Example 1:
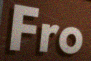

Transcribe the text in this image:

Fro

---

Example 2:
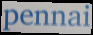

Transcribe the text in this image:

pennai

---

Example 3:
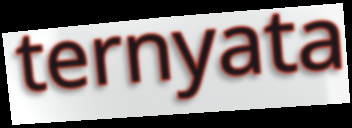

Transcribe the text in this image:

ternyata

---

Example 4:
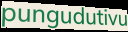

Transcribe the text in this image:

pungudutivu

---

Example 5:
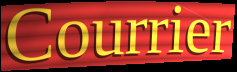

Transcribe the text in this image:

Courrier